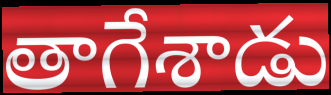
తాగేశాడు